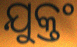
ଯୁକ୍ତଂ